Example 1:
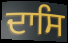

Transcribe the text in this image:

ਦਾਸਿ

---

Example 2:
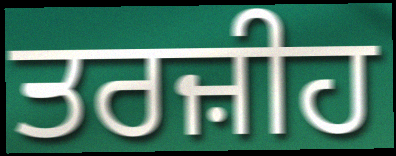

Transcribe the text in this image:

ਤਰਜ਼ੀਹ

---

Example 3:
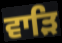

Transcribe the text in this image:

ਵਾੜਿ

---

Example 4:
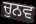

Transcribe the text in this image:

ਚੁਨਵ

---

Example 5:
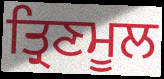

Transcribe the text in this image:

ਤ੍ਰਿਣਮੂਲ